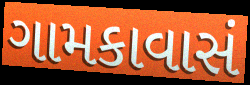
ગામકાવાસં